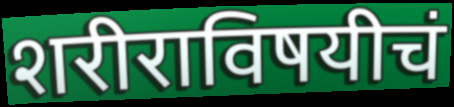
शरीराविषयीचं